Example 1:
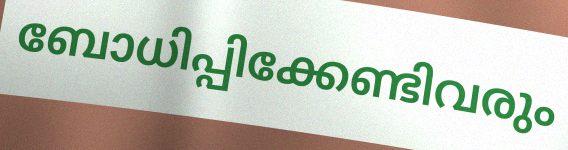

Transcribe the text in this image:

ബോധിപ്പിക്കേണ്ടിവരും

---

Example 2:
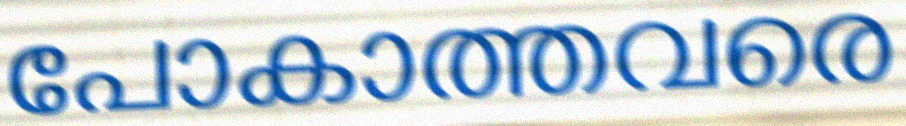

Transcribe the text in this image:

പോകാത്തവരെ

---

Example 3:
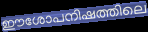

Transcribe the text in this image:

ഈശോപനിഷത്തിലെ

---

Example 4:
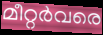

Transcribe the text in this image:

മീറ്റർവരെ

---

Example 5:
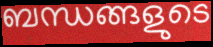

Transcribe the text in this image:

ബന്ധങ്ങളുടെ